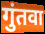
गुंतवा